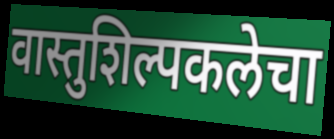
वास्तुशिल्पकलेचा